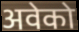
अवेको